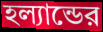
হল্যান্ডের